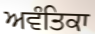
ਅਵੰਤਿਕਾ